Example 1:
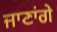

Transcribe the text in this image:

ਜਾਣਾਂਗੇ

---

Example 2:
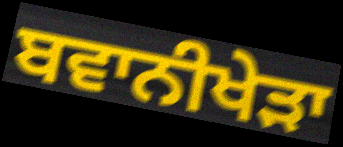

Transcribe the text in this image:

ਬਵਾਨੀਖੇੜਾ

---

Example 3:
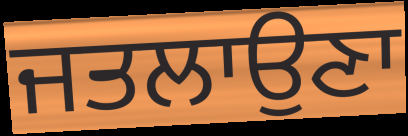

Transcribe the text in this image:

ਜਤਲਾਉਣਾ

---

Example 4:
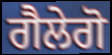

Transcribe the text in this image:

ਗੈਲੇਗੋ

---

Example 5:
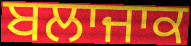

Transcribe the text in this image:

ਬਲਾਜਾਕ